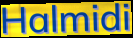
Halmidi